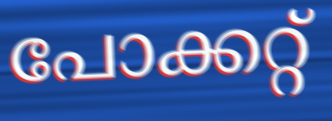
പോക്കറ്റ്